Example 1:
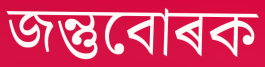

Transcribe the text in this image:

জন্তুবোৰক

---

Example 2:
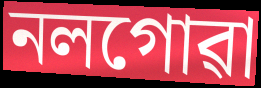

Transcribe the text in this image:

নলগোৱা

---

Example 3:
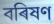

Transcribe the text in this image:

বৰিষণ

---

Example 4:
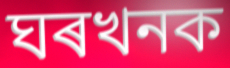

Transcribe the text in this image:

ঘৰখনক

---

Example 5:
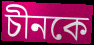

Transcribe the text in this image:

চীনকে